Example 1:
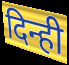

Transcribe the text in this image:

दिन्ही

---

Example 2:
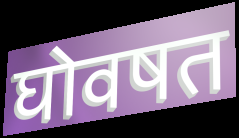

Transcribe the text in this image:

घोवषत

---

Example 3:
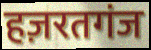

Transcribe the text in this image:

हज़रतगंज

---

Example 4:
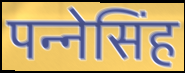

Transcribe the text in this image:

पन्नेसिंह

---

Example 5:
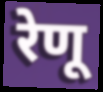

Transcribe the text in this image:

रेणू